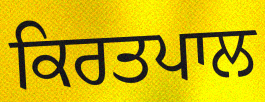
ਕਿਰਤਪਾਲ